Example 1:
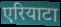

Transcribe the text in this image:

एरियाटा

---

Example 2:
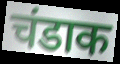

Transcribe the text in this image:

चंडाक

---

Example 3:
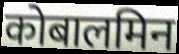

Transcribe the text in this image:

कोबालमिन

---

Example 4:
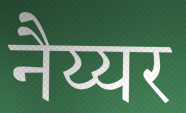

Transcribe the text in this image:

नैय्यर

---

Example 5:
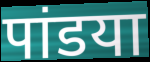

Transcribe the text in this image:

पांडया